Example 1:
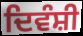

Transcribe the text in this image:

ਦਿਵੰਸ਼ੀ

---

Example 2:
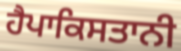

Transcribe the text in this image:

ਹੈਪਾਕਿਸਤਾਨੀ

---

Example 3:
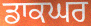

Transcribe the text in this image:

ਡਾਕਘਰ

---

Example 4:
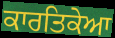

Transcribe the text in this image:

ਕਾਰਤਿਕੇਆ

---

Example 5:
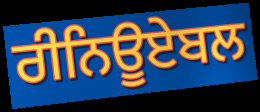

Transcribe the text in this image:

ਰੀਨਿਊਏਬਲ